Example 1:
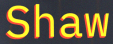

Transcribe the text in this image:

Shaw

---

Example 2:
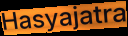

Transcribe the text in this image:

Hasyajatra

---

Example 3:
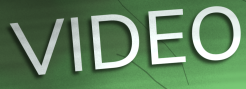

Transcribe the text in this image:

VIDEO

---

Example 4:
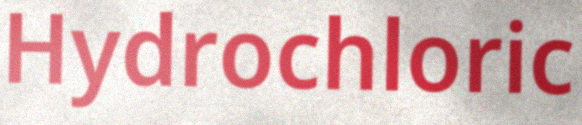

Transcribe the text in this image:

Hydrochloric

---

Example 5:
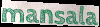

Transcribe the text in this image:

mansala